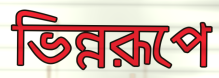
ভিন্নরূপে